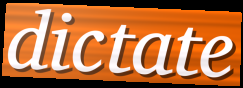
dictate